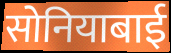
सोनियाबाई